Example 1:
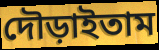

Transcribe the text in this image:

দৌড়াইতাম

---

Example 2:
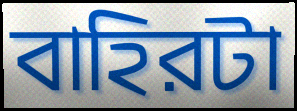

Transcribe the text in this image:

বাহিরটা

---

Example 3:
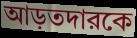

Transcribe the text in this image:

আড়তদারকে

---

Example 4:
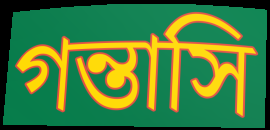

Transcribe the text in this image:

গন্তাসি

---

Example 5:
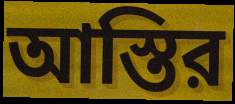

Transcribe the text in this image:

আস্তির